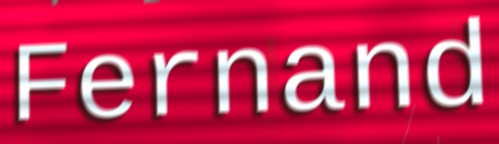
Fernand